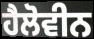
ਹੈਲੋਵੀਨ